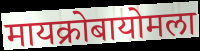
मायक्रोबायोमला